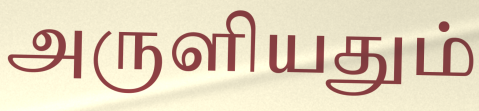
அருளியதும்